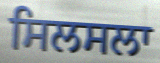
ਸਿਲਸਲਾ